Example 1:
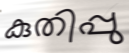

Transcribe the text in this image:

കുതിപ്പു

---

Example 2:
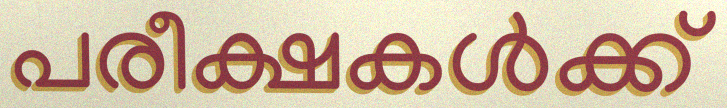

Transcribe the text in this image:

പരീക്ഷകൾക്ക്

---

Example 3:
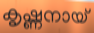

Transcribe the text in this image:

കൃഷ്ണനായ്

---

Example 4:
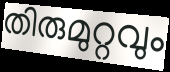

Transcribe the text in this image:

തിരുമുറ്റവും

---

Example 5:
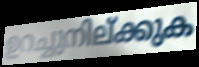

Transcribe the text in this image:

ഉറച്ചുനില്ക്കുക